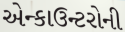
એન્કાઉન્ટરોની